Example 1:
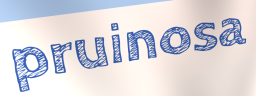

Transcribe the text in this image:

pruinosa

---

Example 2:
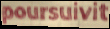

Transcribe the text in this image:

poursuivit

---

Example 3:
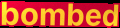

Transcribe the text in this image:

bombed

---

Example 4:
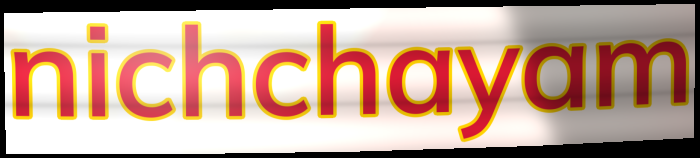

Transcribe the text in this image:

nichchayam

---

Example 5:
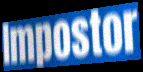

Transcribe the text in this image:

Impostor